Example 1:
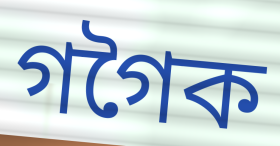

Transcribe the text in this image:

গগৈক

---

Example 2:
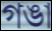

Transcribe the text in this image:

গঙা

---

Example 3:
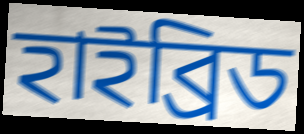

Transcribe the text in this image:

হাইব্ৰিড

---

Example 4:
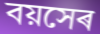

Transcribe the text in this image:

বয়সেৰ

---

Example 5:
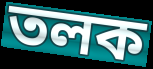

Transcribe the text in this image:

তলক